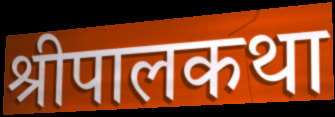
श्रीपालकथा